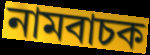
নামবাচক